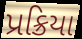
પ્રક્રિયા